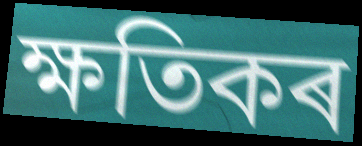
ক্ষতিকৰ